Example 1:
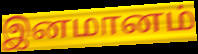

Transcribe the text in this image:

இனமானம்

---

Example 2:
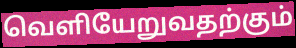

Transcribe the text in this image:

வெளியேறுவதற்கும்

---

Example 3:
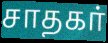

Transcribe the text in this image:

சாதகர்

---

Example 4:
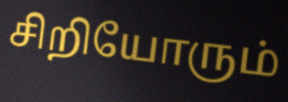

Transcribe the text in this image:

சிறியோரும்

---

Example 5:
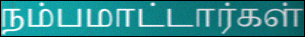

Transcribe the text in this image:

நம்பமாட்டார்கள்